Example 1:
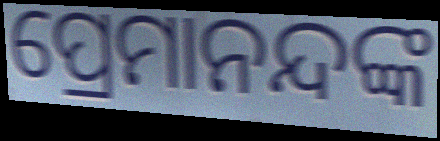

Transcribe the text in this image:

ପ୍ରେମାନନ୍ଦଙ୍କ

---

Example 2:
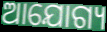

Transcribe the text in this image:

ଆଯୋଗ୍ୟ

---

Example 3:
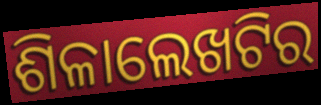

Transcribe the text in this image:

ଶିଳାଲେଖଟିର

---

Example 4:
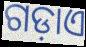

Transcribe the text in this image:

ଗଡ଼ାଏ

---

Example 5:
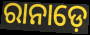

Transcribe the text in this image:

ରାନାଡ଼େ